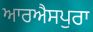
ਆਰਐਸਪੁਰਾ